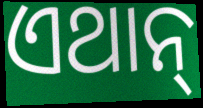
ଏଥାନ୍